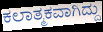
ಕಲಾತ್ಮಕವಾಗಿದ್ದು